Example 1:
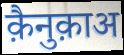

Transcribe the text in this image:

क़ैनुक़ाअ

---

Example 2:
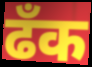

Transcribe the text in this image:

ढँक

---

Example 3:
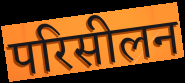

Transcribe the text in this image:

परिसीलन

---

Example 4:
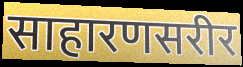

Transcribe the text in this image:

साहारणसरीर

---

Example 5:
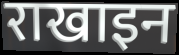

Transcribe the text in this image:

राखाइन